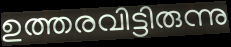
ഉത്തരവിട്ടിരുന്നു